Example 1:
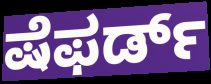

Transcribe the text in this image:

ಷೆಫರ್ಡ್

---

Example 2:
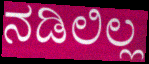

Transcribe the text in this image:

ನಡಿಲಿಲ್ಲ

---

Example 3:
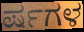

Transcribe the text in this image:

ರ್ಷಗಳ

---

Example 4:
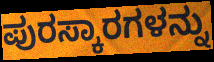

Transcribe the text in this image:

ಪುರಸ್ಕಾರಗಳನ್ನು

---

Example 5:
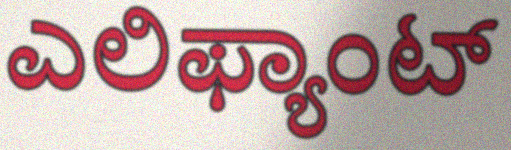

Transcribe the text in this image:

ಎಲಿಫ್ಯಾಂಟ್